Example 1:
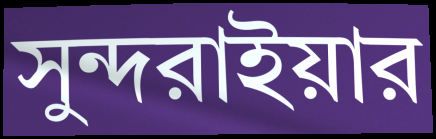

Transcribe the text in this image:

সুন্দরাইয়ার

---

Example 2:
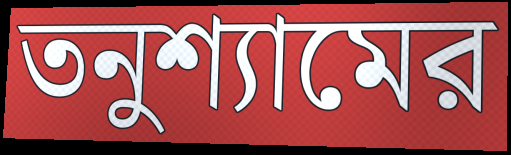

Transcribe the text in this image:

তনুশ্যামের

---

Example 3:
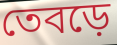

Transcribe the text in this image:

তেবড়ে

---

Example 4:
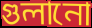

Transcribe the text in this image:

গুলানো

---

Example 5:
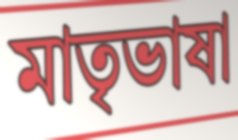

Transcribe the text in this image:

মাতৃভাষা